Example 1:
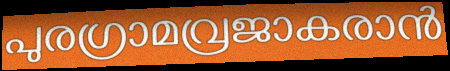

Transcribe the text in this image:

പുരഗ്രാമവ്രജാകരാൻ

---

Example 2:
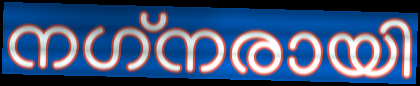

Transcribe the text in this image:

നഗ്‌നരായി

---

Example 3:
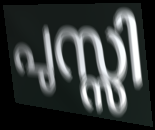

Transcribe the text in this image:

പുസ്സി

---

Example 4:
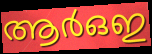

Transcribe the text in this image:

ആർഒഇ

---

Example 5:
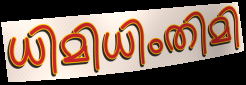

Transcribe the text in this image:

ധിമിധിംതിമി